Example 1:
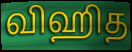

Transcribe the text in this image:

விஹித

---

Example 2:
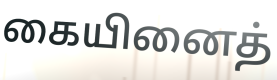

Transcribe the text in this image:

கையினைத்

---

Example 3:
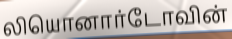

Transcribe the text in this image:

லியொனார்டோவின்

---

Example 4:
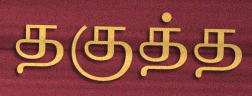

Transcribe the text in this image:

தகுத்த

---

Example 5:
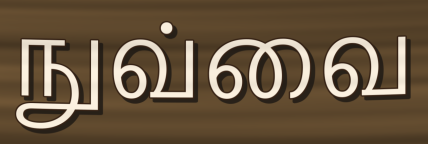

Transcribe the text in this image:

நுவ்வை